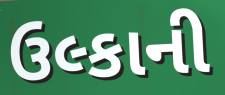
ઉલ્કાની